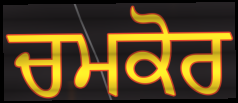
ਚਮਕੋਰ